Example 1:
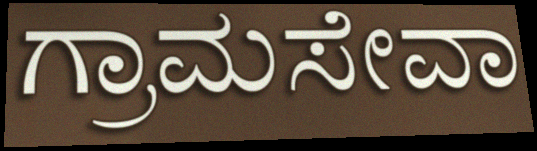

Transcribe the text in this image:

ಗ್ರಾಮಸೇವಾ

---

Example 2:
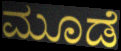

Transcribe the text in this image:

ಮೂಡೆ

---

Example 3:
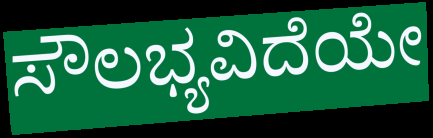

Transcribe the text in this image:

ಸೌಲಭ್ಯವಿದೆಯೇ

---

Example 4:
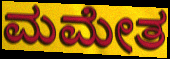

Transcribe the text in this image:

ಮಮೇತ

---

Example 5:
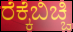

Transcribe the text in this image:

ರೆಕ್ಕೆಬಿಚ್ಚಿ